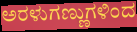
ಅರಳುಗಣ್ಣುಗಳಿಂದ